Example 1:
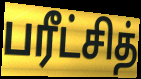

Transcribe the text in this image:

பரீட்சித்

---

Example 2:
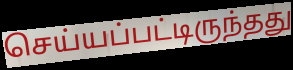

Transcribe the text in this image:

செய்யப்பட்டிருந்தது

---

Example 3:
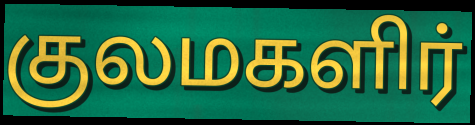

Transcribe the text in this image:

குலமகளிர்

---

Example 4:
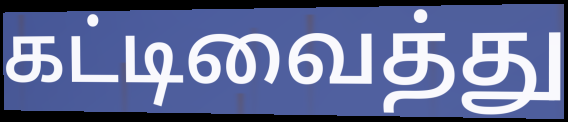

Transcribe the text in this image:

கட்டிவைத்து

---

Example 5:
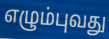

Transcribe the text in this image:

எழும்புவது